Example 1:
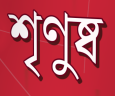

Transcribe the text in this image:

শৃণুষ্ব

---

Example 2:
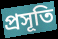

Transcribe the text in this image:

প্রসূতি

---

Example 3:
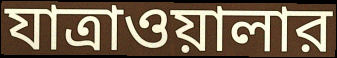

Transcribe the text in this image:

যাত্রাওয়ালার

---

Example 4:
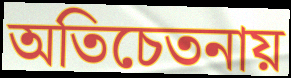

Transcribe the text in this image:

অতিচেতনায়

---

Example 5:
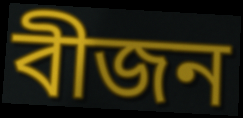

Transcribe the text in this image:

বীজন